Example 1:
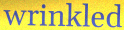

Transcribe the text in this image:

wrinkled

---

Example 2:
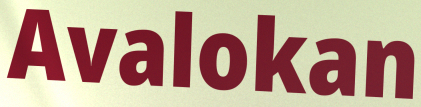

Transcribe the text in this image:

Avalokan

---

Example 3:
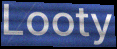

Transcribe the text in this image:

Looty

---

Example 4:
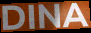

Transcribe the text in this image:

DINA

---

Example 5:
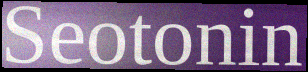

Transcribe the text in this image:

Seotonin